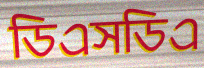
ডিএসডিএ